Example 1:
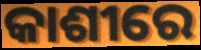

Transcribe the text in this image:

କାଶୀରେ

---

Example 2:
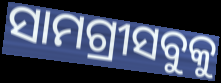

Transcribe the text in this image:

ସାମଗ୍ରୀସବୁକୁ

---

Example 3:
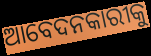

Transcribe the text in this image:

ଆବେଦନକାରୀକୁ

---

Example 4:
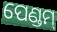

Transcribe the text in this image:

ପେଣ୍ଡମ୍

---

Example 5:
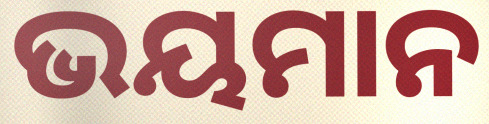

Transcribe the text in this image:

ଭୟମାନ